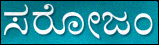
ಸರೋಜಂ